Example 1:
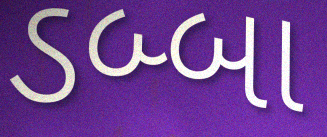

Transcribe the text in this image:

ડબ્બા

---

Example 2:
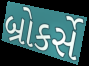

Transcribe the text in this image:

બ્રોકર્સે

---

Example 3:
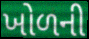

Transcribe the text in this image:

ખોળની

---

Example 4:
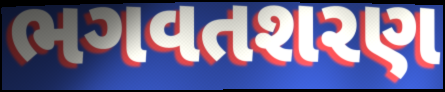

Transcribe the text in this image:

ભગવતશરણ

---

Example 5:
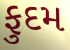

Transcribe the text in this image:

ફુદમ